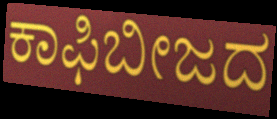
ಕಾಫಿಬೀಜದ